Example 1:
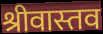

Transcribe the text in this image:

श्रीवास्‍तव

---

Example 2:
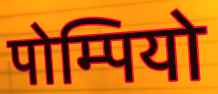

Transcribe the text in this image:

पोम्पियो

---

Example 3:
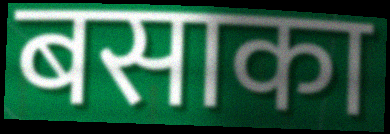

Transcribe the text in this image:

बसाका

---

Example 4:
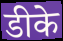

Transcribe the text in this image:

डीके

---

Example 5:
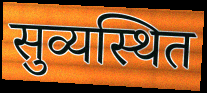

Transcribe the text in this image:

सुव्यस्थित